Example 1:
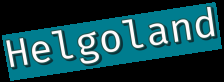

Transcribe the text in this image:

Helgoland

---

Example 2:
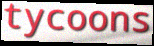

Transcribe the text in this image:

tycoons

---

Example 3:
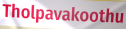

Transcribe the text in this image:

Tholpavakoothu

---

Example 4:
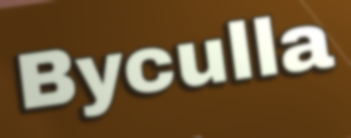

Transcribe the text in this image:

Byculla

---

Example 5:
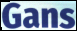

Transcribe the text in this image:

Gans